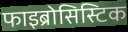
फाइब्रोसिस्टिक